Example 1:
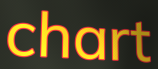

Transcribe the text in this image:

chart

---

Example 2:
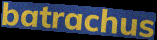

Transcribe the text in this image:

batrachus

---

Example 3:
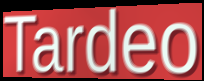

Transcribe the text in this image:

Tardeo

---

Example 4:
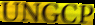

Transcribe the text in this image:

UNGCP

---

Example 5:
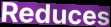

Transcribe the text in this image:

Reduces